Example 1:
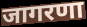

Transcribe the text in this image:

जागरणा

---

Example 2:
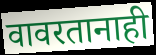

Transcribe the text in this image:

वावरतानाही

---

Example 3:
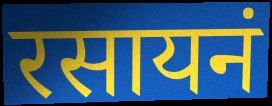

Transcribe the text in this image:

रसायनं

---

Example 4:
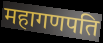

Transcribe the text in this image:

महागणपति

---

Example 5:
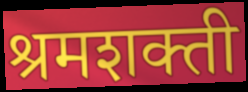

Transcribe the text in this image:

श्रमशक्ती